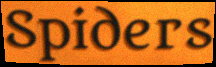
Spiders